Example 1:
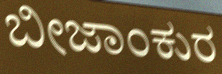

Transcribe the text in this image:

ಬೀಜಾಂಕುರ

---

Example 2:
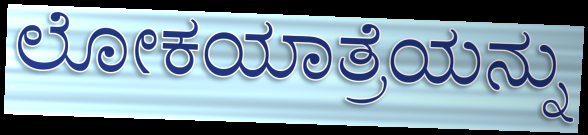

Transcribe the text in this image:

ಲೋಕಯಾತ್ರೆಯನ್ನು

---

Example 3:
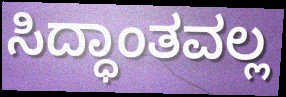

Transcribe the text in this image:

ಸಿದ್ಧಾಂತವಲ್ಲ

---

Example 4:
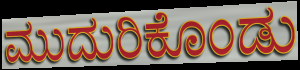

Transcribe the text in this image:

ಮುದುರಿಕೊಂಡು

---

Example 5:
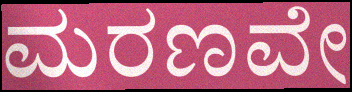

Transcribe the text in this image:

ಮರಣವೇ